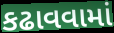
કઢાવવામાં